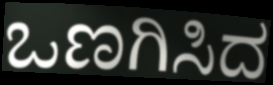
ಒಣಗಿಸಿದ